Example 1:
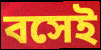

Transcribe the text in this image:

বসেই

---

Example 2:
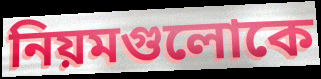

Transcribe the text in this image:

নিয়মগুলোকে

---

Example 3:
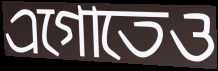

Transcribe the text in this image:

এগোতেও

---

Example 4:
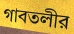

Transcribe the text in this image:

গাবতলীর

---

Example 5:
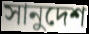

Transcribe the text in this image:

সানুদেশ